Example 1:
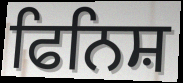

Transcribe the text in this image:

ਫਿਨਿਸ਼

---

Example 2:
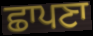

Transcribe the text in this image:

ਛਾਪਣਾ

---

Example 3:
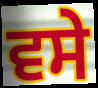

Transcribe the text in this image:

ਵਸੇ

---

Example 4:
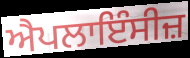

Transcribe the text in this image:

ਐਪਲਾਇੰਸੀਜ਼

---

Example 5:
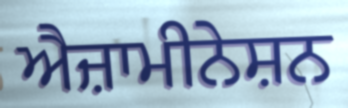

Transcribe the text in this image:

ਐਜ਼ਾਮੀਨੇਸ਼ਨ